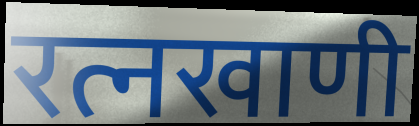
रत्नखाणी